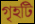
গৃহটি